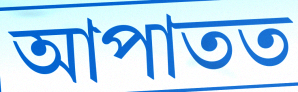
আপাতত